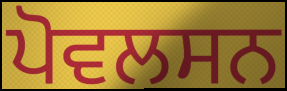
ਪੋਵਲਸਨ